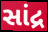
સાંદ્ર